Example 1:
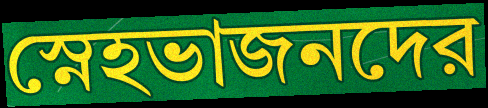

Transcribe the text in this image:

স্নেহভাজনদের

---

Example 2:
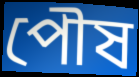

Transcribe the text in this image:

পৌষ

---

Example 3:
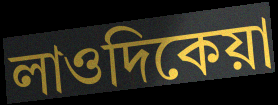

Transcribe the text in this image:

লাওদিকেয়া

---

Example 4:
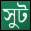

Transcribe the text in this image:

সুট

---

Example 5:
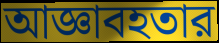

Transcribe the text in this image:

আজ্ঞাবহতার